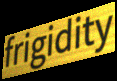
frigidity